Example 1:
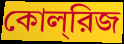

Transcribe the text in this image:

কোল্‌রিজ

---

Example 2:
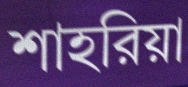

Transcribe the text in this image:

শাহরিয়া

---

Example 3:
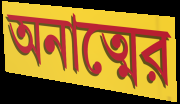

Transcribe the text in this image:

অনাত্মের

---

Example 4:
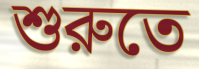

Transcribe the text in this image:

শুরুতে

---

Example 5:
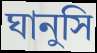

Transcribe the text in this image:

ঘানুসি